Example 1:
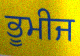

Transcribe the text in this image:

ਭੂਮੀਜ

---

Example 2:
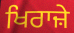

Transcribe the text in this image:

ਖਿਰਾਜ਼ੇ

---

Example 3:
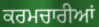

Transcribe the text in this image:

ਕਰਮਚਾਰੀਆਂ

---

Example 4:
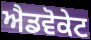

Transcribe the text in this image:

ਐਡਵੋਕੇਟ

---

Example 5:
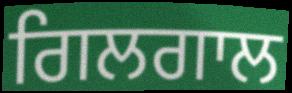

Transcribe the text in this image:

ਗਿਲਗਾਲ